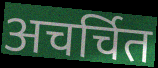
अचर्चित